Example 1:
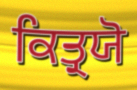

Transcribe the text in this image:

ਕਿਤ੍ਰਯੋ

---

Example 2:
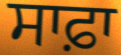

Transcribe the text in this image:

ਸਾਫ਼ਾ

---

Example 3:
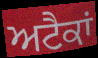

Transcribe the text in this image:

ਅਟੈਕਾਂ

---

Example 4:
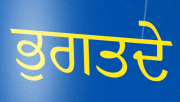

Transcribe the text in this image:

ਭੁਗਤਦੇ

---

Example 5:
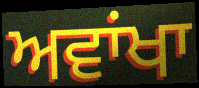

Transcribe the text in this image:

ਅਵਾਂਖਾ